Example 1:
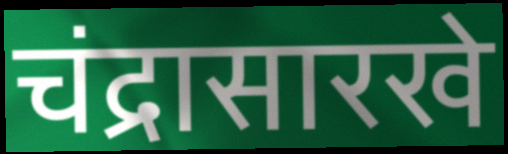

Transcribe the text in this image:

चंद्रासारखे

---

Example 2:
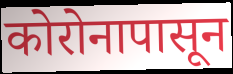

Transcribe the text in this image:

कोरोनापासून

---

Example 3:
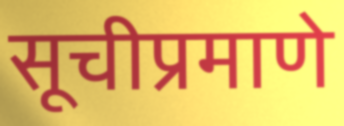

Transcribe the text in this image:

सूचीप्रमाणे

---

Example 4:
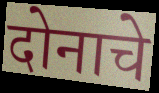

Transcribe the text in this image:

दोनाचे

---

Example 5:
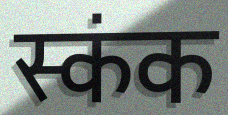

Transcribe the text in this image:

स्कंक